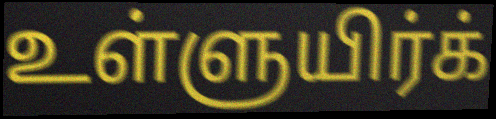
உள்ளுயிர்க்